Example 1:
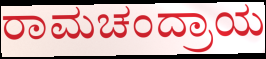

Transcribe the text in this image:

ರಾಮಚಂದ್ರಾಯ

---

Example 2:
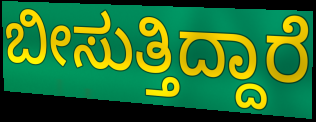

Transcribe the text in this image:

ಬೀಸುತ್ತಿದ್ದಾರೆ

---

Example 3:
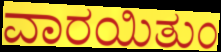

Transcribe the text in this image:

ವಾರಯಿತುಂ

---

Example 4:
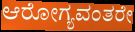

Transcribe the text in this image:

ಆರೋಗ್ಯವಂತರೇ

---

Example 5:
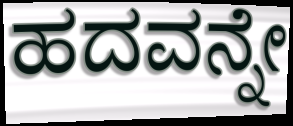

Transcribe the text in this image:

ಹದವನ್ನೇ